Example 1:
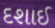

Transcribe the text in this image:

દશાઈ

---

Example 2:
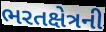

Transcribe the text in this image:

ભરતક્ષેત્રની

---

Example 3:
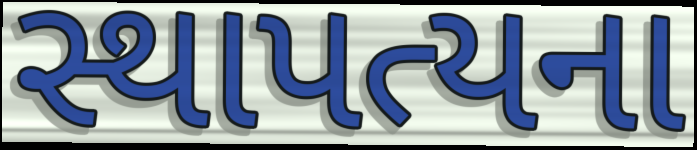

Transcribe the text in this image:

સ્થાપત્યના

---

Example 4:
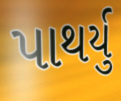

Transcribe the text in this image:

પાથર્યુ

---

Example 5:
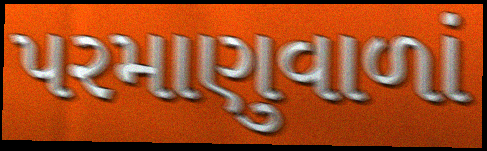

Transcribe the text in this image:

પરમાણુવાળાં